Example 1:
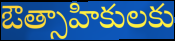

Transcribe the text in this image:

ఔత్సాహికులకు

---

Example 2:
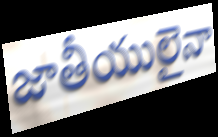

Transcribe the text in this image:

జాతీయులైనా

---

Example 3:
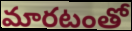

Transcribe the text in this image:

మారటంతో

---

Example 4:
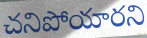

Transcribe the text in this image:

చనిపోయారని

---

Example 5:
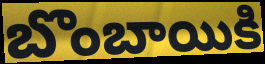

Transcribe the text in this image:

బొంబాయికి